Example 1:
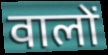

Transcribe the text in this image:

वालों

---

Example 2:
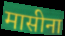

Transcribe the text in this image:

मासीना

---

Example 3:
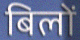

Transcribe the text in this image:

बिलों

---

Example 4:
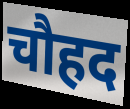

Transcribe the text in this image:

चौहद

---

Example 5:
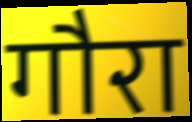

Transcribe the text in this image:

गौरा